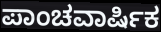
ಪಾಂಚವಾರ್ಷಿಕ